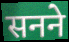
सनने